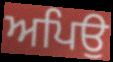
ਅਪਿਉ